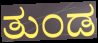
ತುಂಡ